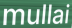
mullai